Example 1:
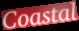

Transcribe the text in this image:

Coastal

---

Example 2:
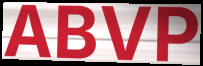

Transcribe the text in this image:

ABVP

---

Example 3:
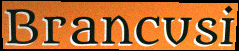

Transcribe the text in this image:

Brancusi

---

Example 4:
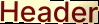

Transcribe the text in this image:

Header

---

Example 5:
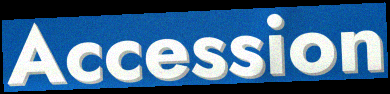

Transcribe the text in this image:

Accession